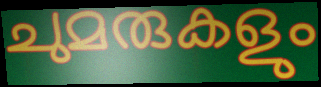
ചുമരുകളും